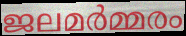
ജലമർമ്മരം